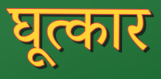
घूत्कार